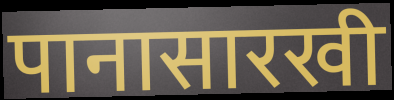
पानासारखी